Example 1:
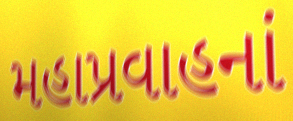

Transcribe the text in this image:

મહાપ્રવાહનાં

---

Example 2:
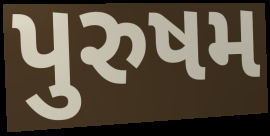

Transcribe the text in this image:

પુરુષમ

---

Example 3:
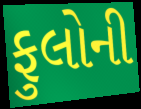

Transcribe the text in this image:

ફુલોની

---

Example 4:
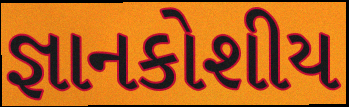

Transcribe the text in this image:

જ્ઞાનકોશીય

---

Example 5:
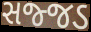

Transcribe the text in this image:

સજ્જડ